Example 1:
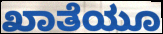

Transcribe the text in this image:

ಖಾತೆಯೂ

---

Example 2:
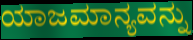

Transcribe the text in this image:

ಯಾಜಮಾನ್ಯವನ್ನು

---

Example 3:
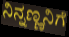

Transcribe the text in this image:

ನಿನ್ನಣ್ಣನಿಗೆ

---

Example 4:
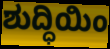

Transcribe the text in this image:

ಶುದ್ಧಿಯಿಂ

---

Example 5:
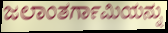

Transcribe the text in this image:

ಜಲಾಂತರ್ಗಾಮಿಯನ್ನು